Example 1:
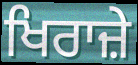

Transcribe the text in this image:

ਖਿਰਾਜ਼ੇ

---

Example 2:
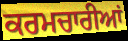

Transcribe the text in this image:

ਕਰਮਚਾਰੀਆਂ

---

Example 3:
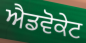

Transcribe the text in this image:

ਐਡਵੋਕੇਟ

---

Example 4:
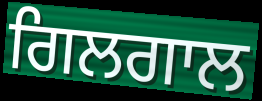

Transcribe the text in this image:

ਗਿਲਗਾਲ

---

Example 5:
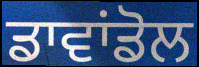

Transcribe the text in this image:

ਡਾਵਾਂਡੋਲ